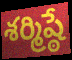
శర్మిష్ఠే